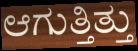
ಆಗುತ್ತಿತ್ತು